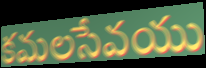
కమలసేవయు